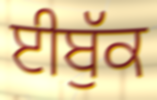
ਈਬੁੱਕ